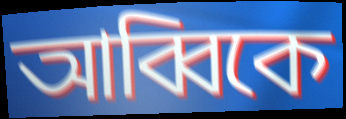
আব্বিকে